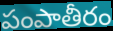
పంపాతీరం